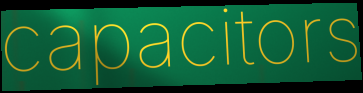
capacitors